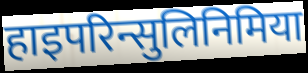
हाइपरिन्सुलिनिमिया